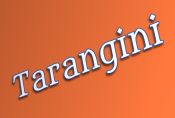
Tarangini